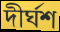
দীর্ঘশ